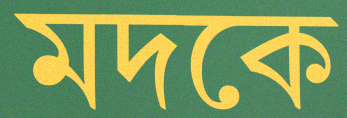
মদকে